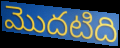
మొదటిది